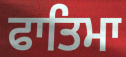
ਫਾਤਿਮਾ